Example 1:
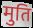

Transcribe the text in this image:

मुति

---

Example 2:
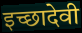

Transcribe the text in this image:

इच्छादेवी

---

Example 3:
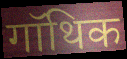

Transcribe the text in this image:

गॉथिक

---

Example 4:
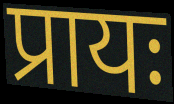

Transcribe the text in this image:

प्रायः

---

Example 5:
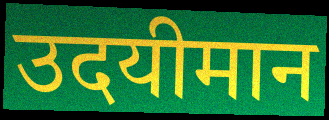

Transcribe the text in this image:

उदयीमान